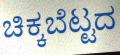
ಚಿಕ್ಕಬೆಟ್ಟದ